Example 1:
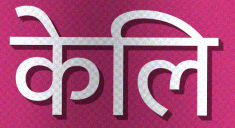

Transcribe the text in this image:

केलि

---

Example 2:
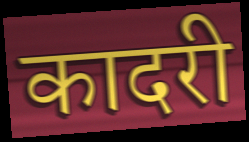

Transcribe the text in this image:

कादरी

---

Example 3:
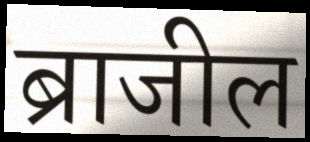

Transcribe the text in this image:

ब्राजील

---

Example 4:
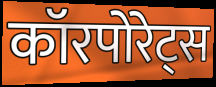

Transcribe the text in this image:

कॉरपोरेट्स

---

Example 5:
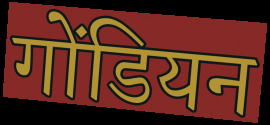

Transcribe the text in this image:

गोंडियन